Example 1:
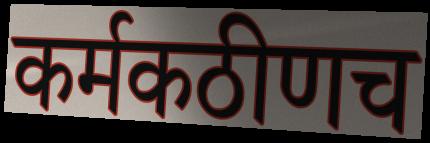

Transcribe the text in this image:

कर्मकठीणच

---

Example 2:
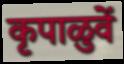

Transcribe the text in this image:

कृपाळुवें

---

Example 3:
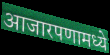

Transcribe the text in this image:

आजारपणामध्ये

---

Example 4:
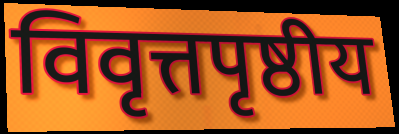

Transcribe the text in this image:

विवृत्तपृष्ठीय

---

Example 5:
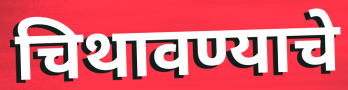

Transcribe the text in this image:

चिथावण्याचे